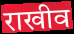
राखीव